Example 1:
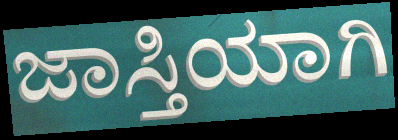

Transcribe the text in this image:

ಜಾಸ್ತಿಯಾಗಿ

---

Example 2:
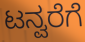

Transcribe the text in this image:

ಟನ್ವರೆಗೆ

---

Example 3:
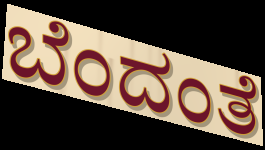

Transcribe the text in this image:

ಬೆಂದಂತೆ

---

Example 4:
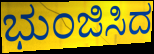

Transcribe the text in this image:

ಭುಂಜಿಸಿದ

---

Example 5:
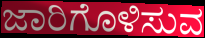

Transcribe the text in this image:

ಜಾರಿಗೊಳಿಸುವ